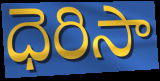
ధెరిసా